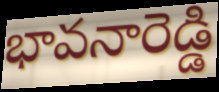
భావనారెడ్డి